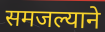
समजल्याने